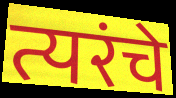
त्यरंचे